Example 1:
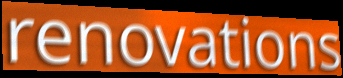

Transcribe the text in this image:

renovations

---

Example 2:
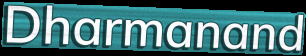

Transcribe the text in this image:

Dharmanand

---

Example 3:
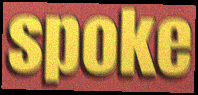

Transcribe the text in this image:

spoke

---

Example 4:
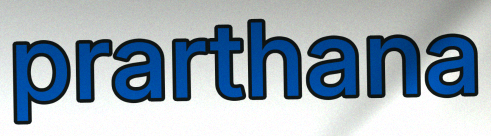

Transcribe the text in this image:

prarthana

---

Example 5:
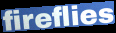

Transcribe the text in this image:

fireflies